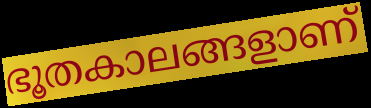
ഭൂതകാലങ്ങളാണ്